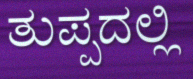
ತುಪ್ಪದಲ್ಲಿ